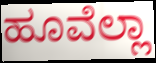
ಹೂವೆಲ್ಲಾ